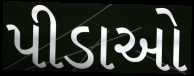
પીડાઓ